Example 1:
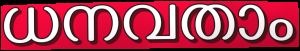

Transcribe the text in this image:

ധനവതാം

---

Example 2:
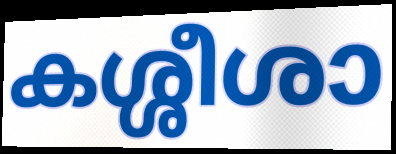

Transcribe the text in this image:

കശ്ശീശാ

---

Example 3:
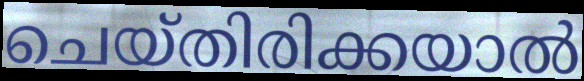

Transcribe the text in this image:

ചെയ്തിരിക്കയാൽ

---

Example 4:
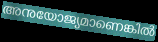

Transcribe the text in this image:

അനുയോജ്യമാണെങ്കിൽ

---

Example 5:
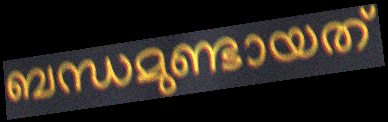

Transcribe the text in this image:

ബന്ധമുണ്ടായത്